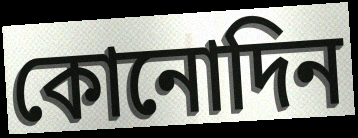
কোনোদিন